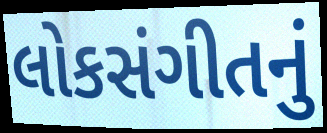
લોકસંગીતનું